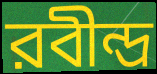
রবীন্দ্র